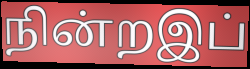
நின்றஇப்